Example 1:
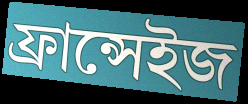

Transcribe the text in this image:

ফ্ৰান্সেইজ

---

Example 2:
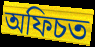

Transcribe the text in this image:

অফিচত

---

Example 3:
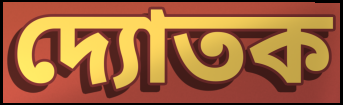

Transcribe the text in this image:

দ্যোতক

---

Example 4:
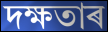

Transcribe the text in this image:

দক্ষতাৰ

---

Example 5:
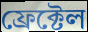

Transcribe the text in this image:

ফ্ৰেক্টেল